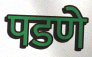
पडणे